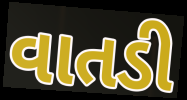
વાતડી